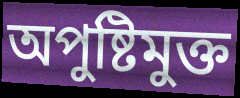
অপুষ্টিমুক্ত